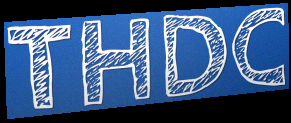
THDC